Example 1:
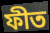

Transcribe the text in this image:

ফীত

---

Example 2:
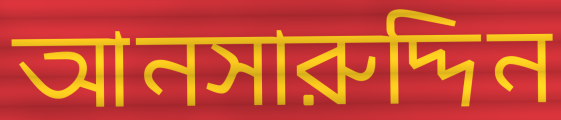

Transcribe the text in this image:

আনসারুদ্দিন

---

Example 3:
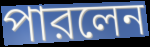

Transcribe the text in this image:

পারলেন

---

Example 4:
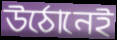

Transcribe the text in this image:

উঠোনেই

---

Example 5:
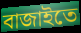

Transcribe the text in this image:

বাজাইতে